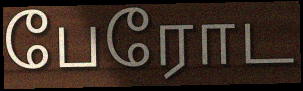
பேரோட